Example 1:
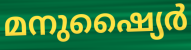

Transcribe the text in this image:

മനുഷ്യൈർ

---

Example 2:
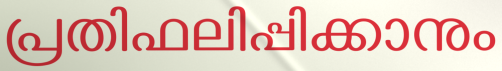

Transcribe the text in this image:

പ്രതിഫലിപ്പിക്കാനും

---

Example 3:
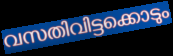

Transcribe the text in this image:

വസതിവിട്ടക്കൊടും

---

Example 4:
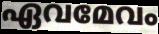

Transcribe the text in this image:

ഏവമേവം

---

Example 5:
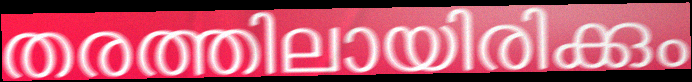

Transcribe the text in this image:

തരത്തിലായിരിക്കും